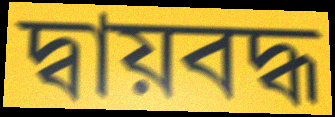
দ্বায়বদ্ধ